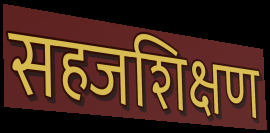
सहजशिक्षण